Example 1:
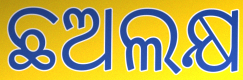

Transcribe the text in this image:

ଛଅଲକ୍ଷ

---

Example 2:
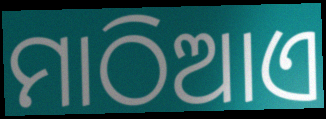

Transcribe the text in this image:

ମାଠିଆଏ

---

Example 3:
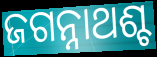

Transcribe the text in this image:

ଜଗନ୍ନାଥଶ୍ଚ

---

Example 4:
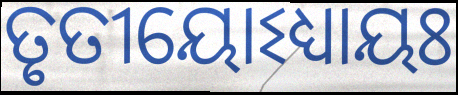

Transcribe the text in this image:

ତୃତୀୟୋଽଧ୍ୟାୟଃ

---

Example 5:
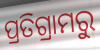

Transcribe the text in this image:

ପ୍ରତିଗ୍ରାମରୁ